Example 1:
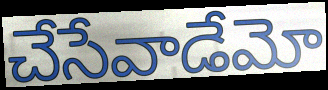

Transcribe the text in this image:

చేసేవాడేమో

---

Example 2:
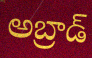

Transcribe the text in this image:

అబ్రాడ్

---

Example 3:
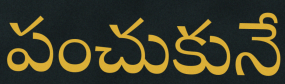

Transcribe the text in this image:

పంచుకునే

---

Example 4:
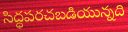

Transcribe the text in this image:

సిద్ధపరచబడియున్నది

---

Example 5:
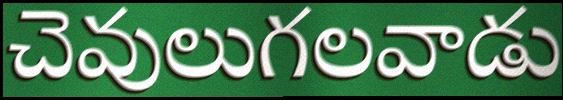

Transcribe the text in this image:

చెవులుగలవాడు